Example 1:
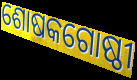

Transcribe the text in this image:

ଶୋଷକଗୋଷ୍ଠୀ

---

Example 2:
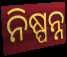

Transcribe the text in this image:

ନିଷ୍ପନ୍ନ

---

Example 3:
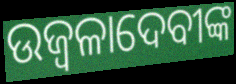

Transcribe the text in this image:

ଉଜ୍ୱଳାଦେବୀଙ୍କ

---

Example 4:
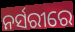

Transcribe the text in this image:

ନର୍ସରୀରେ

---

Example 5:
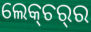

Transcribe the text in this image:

ଲେକ୍‌ଚର୍‌ର